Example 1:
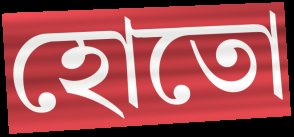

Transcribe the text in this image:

হোতো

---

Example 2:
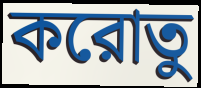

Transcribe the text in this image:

করোতু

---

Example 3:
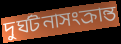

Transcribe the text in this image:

দুর্ঘটনাসংক্রান্ত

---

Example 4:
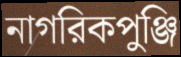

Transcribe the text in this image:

নাগরিকপুঞ্জি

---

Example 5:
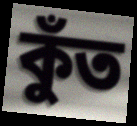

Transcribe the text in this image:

কুঁত